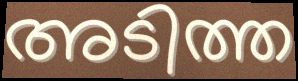
അടിത്ത